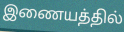
இணையத்தில்